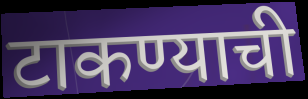
टाकण्याची